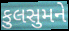
કુલસુમને